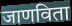
जाणविता